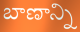
బాణాన్ని